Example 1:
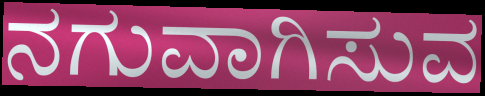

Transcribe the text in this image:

ನಗುವಾಗಿಸುವ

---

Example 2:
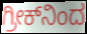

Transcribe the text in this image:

ಗ್ರೀಕ್‌ನಿಂದ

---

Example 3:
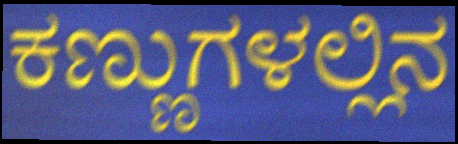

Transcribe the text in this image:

ಕಣ್ಣುಗಳಲ್ಲಿನ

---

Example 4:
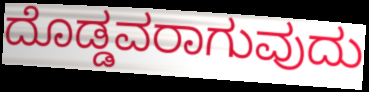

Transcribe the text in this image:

ದೊಡ್ಡವರಾಗುವುದು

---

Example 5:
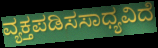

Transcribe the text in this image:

ವ್ಯಕ್ತಪಡಿಸಸಾಧ್ಯವಿದೆ